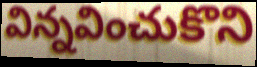
విన్నవించుకొని